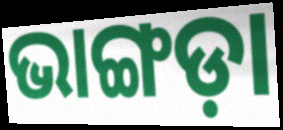
ଭାଙ୍ଗଡ଼ା